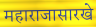
महाराजासारखे